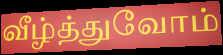
வீழ்த்துவோம்